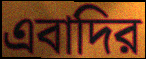
এবাদির